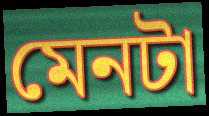
মেনটা